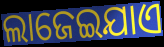
ଲାଜେଇଯାଏ